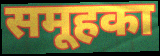
समूहका